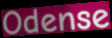
Odense